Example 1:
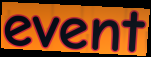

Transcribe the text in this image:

event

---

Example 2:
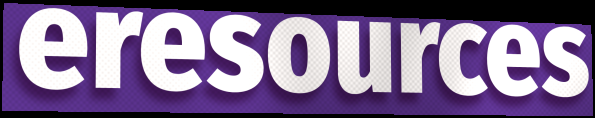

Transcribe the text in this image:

eresources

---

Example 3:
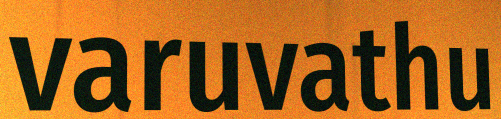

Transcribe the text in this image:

varuvathu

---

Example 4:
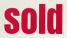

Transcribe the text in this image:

sold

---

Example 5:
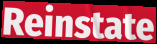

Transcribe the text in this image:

Reinstate